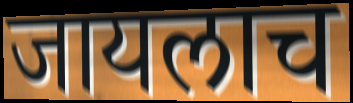
जायलाच